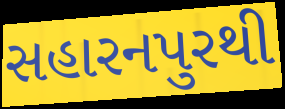
સહારનપુરથી